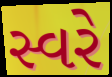
સ્વરે